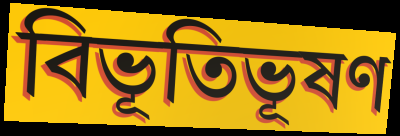
বিভূতিভূষণ